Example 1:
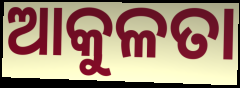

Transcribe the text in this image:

ଆକୁଳତା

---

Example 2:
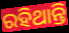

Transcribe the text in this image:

ରହିଥାନ୍ତି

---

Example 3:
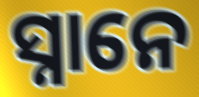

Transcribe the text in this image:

ସ୍ନାନେ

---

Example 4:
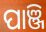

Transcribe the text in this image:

ପାଞ୍ଜି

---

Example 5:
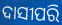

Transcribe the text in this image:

ଦାସୀପରି